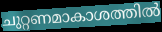
ചുറ്റണമാകാശത്തിൽ